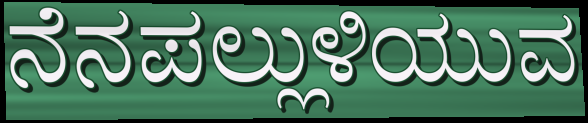
ನೆನಪಲ್ಲುಳಿಯುವ